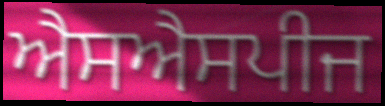
ਐਸਐਸਪੀਜ